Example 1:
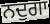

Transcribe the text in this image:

ਨਦੁਗਾ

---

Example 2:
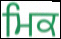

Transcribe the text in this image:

ਮਿਕ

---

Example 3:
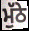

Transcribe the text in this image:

ਮੁੱਠੇ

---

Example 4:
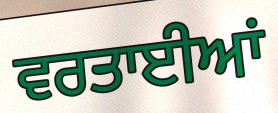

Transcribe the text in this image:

ਵਰਤਾਈਆਂ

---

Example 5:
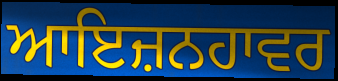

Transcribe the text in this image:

ਆਇਜ਼ਨਹਾਵਰ